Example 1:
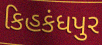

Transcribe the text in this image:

કિહકંધપુર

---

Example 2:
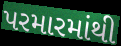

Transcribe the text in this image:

પરમારમાંથી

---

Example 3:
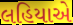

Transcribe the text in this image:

લહિયાએ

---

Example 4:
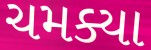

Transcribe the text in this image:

ચમક્યા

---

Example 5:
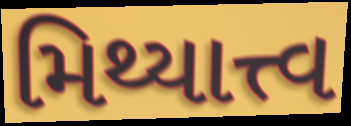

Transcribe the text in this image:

મિથ્યાત્ત્વ